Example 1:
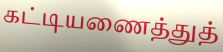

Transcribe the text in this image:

கட்டியணைத்துத்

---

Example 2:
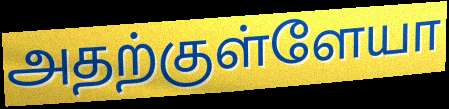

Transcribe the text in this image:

அதற்குள்ளேயா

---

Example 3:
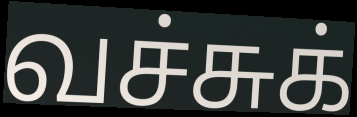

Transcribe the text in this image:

வச்சுக்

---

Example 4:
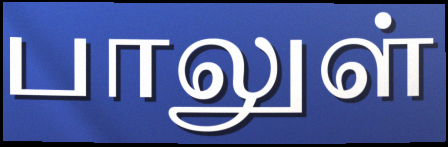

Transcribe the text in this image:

பாலுள்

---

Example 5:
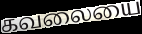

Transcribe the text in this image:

கவலையை